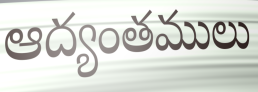
ఆద్యంతములు